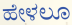
ಹೇಳಲೂ